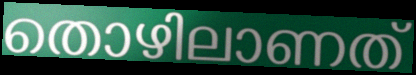
തൊഴിലാണത്